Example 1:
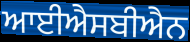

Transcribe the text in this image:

ਆਈਐਸਬੀਐਨ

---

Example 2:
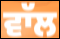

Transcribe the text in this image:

ਵਾੱਲ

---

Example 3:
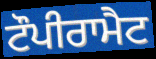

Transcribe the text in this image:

ਟੌਪੀਰਾਮੈਟ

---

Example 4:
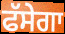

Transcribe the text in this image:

ਫੱਸੇਗਾ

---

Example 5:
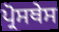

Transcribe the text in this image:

ਪ੍ਰੋਸਥੇਸ